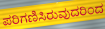
ಪರಿಗಣಿಸಿರುವುದರಿಂದ